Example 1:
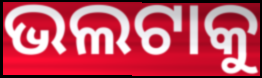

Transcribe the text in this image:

ଭଲଟାକୁ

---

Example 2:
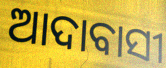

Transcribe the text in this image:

ଆଦାବାସୀ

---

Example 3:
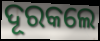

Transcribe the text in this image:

ଦୂରକଲେ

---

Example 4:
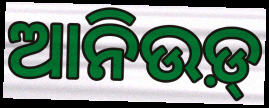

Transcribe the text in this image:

ଆନିଉଡ଼୍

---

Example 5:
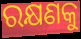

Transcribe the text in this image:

ରକ୍ଷଣକୁ